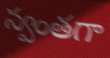
స్వంతగా